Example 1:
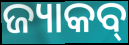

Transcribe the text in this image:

ଜ୍ୟାକବ୍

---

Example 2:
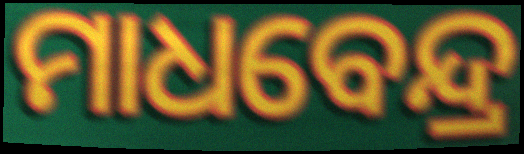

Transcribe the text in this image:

ମାଧବେନ୍ଦ୍ର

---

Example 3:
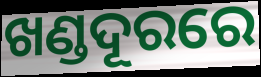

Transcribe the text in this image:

ଖଣ୍ଡଦୂରରେ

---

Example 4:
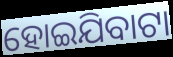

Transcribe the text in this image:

ହୋଇଯିବାଟା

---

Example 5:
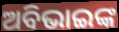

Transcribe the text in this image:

ଅବିଭାଇଙ୍କ